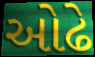
ઓઢે